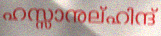
ഹസ്സാനുല്ഹിന്ദ്